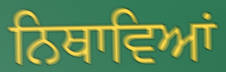
ਨਿਥਾਵਿਆਂ